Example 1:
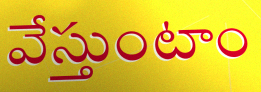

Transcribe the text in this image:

వేస్తుంటాం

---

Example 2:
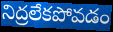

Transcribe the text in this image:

నిద్రలేకపోవడం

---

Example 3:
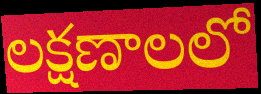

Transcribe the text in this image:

లక్షణాలలో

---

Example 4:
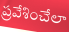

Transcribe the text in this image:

ప్రవేశించేలా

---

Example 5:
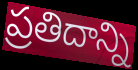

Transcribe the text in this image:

ప్రతిదాన్ని